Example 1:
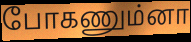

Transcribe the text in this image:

போகணும்னா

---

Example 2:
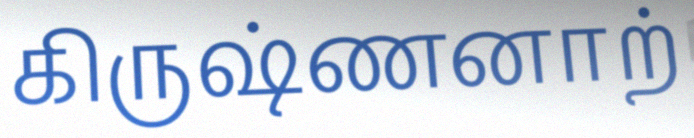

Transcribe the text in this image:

கிருஷ்ணனாற்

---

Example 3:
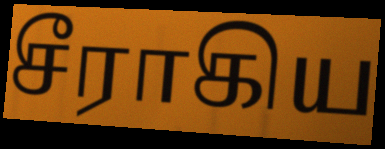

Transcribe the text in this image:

சீராகிய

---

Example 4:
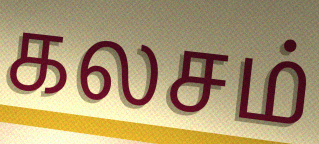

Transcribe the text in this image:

கலசம்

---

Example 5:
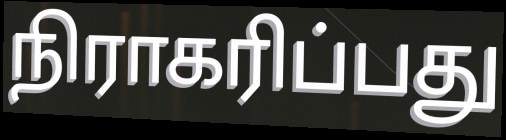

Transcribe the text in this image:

நிராகரிப்பது